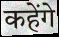
कहेंगे